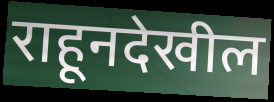
राहूनदेखील